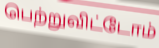
பெற்றுவிட்டோம்